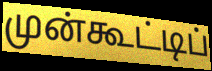
முன்கூட்டிப்